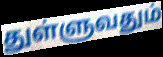
துள்ளுவதும்